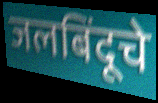
जलबिंदूचे